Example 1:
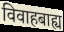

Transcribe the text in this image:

विवाहबाह्य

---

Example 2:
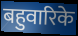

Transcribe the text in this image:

बहुवारिके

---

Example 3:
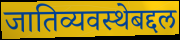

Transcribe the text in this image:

जातिव्यवस्थेबद्दल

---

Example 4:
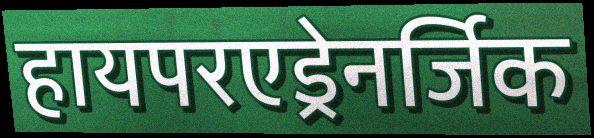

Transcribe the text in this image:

हायपरएड्रेनर्जिक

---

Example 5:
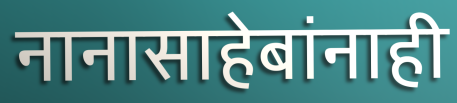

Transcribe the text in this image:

नानासाहेबांनाही